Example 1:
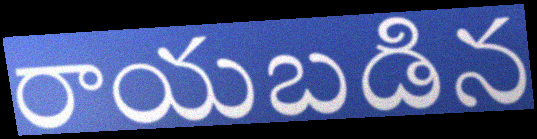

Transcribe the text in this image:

రాయబడిన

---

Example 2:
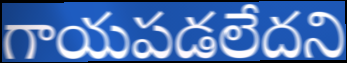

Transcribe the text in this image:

గాయపడలేదని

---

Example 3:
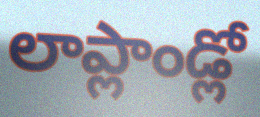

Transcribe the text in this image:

లాప్లాండ్లో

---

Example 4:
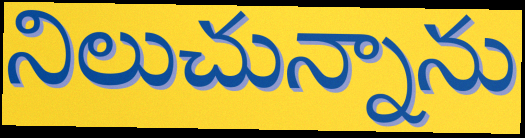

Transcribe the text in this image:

నిలుచున్నాను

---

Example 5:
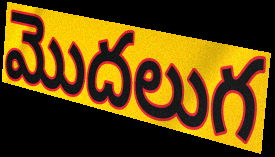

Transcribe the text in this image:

మొదలుగ